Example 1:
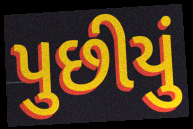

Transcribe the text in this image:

પુછીયું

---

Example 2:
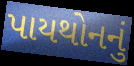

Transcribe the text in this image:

પાયથોનનું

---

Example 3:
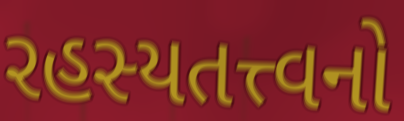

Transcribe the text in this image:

રહસ્યતત્ત્વનો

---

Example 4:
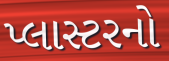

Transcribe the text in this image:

પ્લાસ્ટરનો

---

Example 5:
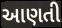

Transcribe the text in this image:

આણતી